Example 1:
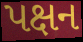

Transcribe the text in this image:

પક્ષન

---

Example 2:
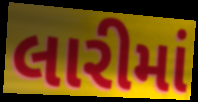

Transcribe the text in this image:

લારીમાં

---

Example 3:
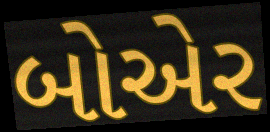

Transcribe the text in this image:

બોએર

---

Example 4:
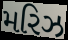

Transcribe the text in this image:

મરિઝ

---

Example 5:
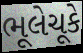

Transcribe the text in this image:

ભૂલેચૂકે